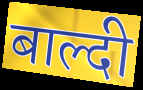
बाल्दी